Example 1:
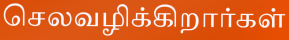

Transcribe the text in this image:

செலவழிக்கிறார்கள்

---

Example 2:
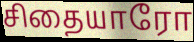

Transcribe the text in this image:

சிதையாரோ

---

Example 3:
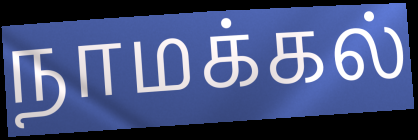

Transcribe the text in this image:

நாமக்கல்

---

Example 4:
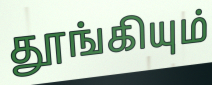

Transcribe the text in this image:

தூங்கியும்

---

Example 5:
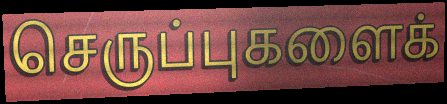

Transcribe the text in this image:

செருப்புகளைக்